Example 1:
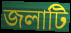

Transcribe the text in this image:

জলাটি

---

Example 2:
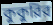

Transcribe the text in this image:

কুকুরির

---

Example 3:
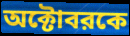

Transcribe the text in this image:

অক্টোবরকে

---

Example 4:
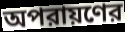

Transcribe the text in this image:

অপরায়ণের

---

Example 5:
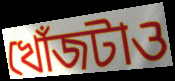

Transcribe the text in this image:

খোঁজটাও